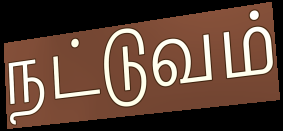
நட்டுவம்